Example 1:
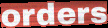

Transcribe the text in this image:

orders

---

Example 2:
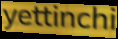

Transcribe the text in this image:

yettinchi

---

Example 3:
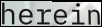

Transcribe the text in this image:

herein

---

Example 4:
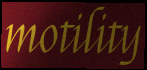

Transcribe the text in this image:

motility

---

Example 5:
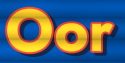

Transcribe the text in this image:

Oor